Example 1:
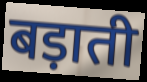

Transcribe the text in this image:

बड़ाती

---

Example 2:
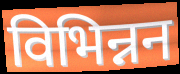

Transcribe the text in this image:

विभिन्नन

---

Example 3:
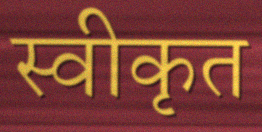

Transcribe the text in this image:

स्वीकृत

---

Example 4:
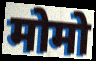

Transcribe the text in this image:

मोमो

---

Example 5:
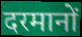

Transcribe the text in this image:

दरमानों